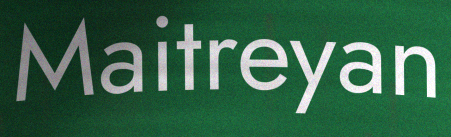
Maitreyan